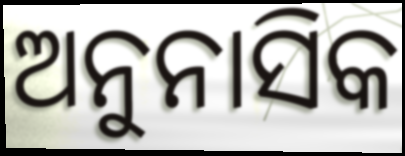
ଅନୁନାସିକ